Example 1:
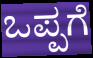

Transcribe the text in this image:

ಒಪ್ಪಗೆ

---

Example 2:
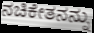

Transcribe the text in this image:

ನಚಿಕೇತನನ್ನು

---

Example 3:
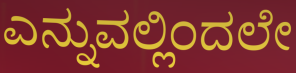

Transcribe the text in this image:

ಎನ್ನುವಲ್ಲಿಂದಲೇ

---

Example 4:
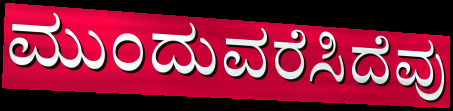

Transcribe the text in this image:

ಮುಂದುವರೆಸಿದೆವು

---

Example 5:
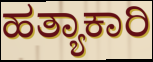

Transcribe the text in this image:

ಹತ್ಯಾಕಾರಿ